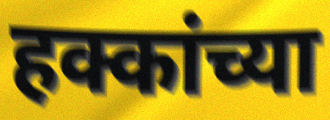
हक्कांच्या